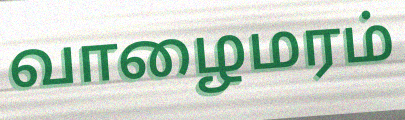
வாழைமரம்